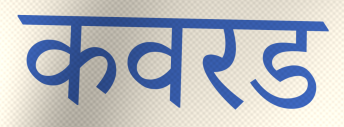
कवरड